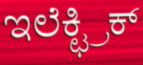
ಇಲೆಕ್ಟ್ರಿಕ್